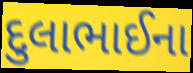
દુલાભાઈના